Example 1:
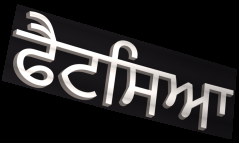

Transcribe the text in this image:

ਫੈਟਸਿਆ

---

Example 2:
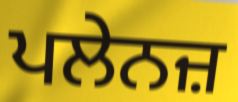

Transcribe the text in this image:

ਪਲੇਨਜ਼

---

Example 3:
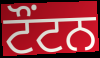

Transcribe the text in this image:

ਟੌਂਟਨ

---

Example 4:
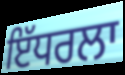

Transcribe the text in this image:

ਇੱਧਰਲਾ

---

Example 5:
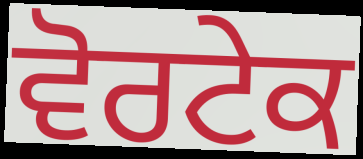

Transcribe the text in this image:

ਵੋਰਟੇਕ